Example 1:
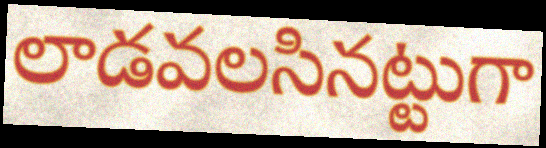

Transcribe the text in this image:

లాడవలసినట్టుగా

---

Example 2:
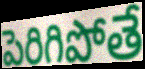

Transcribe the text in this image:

పెరిగిపోతే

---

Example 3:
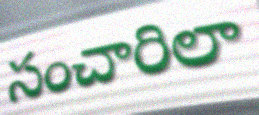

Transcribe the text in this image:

సంచారిలా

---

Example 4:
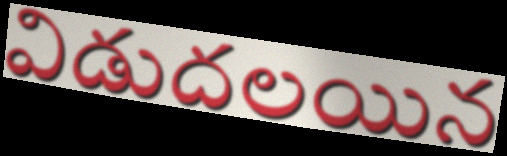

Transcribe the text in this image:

విడుదలయిన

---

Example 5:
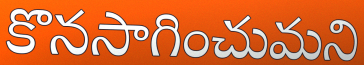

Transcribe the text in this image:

కొనసాగించుమని